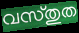
വസ്തുത